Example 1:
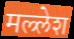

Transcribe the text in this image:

मल्लेश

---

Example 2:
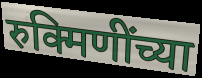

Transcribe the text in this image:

रुक्मिणींच्या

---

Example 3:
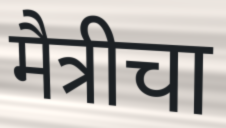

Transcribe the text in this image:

मैत्रीचा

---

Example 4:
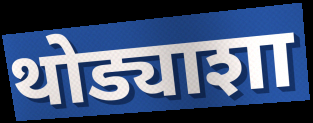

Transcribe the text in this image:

थोड्याशा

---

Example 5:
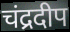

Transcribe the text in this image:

चंद्रदीप